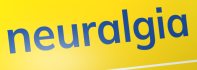
neuralgia